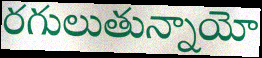
రగులుతున్నాయో